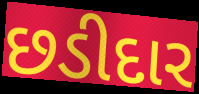
છડીદાર